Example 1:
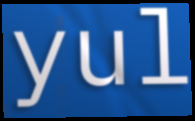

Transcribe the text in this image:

yul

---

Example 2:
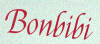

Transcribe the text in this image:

Bonbibi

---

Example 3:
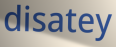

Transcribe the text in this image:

disatey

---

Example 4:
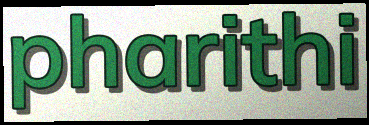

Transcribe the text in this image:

pharithi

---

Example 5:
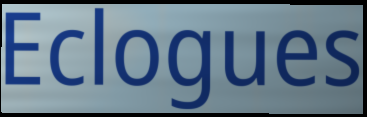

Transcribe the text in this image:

Eclogues